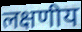
लक्षणीय